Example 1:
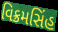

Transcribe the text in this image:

વિક્રમસિંહ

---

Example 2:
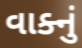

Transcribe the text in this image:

વાક્નું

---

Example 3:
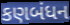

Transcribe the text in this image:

કણબંધન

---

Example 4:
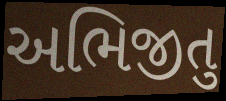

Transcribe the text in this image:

અભિજીતુ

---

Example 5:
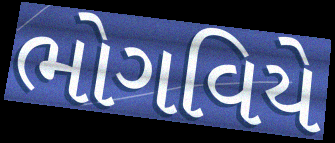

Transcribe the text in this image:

ભોગવિયે